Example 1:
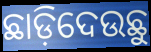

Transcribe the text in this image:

ଛାଡ଼ିଦେଉଛୁ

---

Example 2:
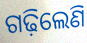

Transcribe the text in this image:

ଗଢ଼ିଲେଣି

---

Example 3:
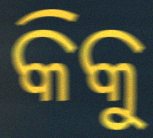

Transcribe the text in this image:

କିକୁ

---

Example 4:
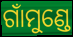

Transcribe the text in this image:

ଗାଁମୁଣ୍ଡେ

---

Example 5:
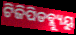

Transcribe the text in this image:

ଟିଜିପିଡବ୍ଲ୍ୟୁୟୁ